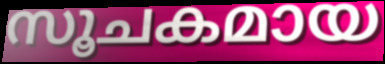
സൂചകമായ